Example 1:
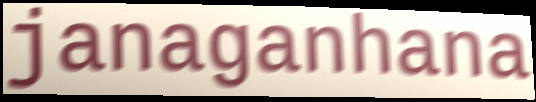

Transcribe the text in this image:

janaganhana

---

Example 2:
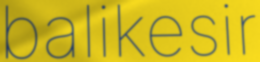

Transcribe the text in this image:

balikesir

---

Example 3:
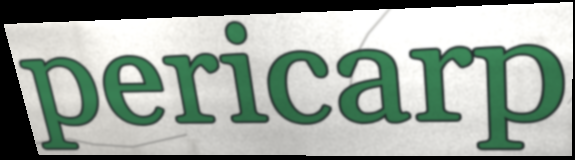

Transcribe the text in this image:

pericarp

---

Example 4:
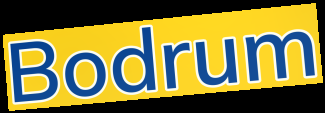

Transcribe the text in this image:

Bodrum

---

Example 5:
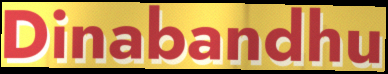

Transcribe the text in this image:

Dinabandhu